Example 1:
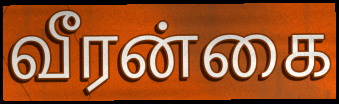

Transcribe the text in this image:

வீரன்கை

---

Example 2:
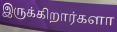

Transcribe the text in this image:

இருக்கிறார்களா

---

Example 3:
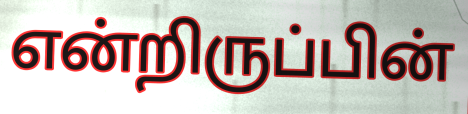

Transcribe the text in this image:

என்றிருப்பின்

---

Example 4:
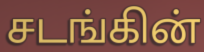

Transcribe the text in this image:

சடங்கின்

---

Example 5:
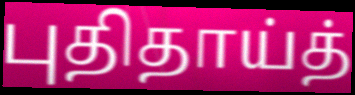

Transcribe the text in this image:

புதிதாய்த்